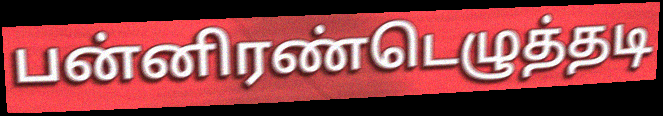
பன்னிரண்டெழுத்தடி